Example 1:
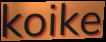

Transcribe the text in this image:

koike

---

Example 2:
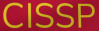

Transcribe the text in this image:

CISSP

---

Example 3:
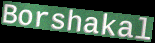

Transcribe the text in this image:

Borshakal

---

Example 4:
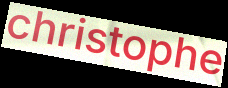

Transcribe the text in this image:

christophe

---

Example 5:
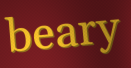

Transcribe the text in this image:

beary